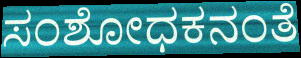
ಸಂಶೋಧಕನಂತೆ